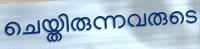
ചെയ്തിരുന്നവരുടെ